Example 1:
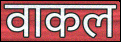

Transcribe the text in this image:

वाकल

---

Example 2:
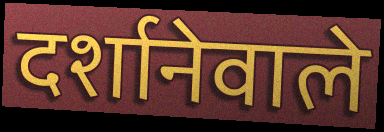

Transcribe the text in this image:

दर्शानेवाले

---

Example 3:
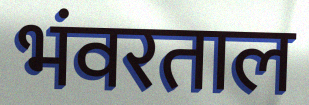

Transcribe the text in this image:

भंवरताल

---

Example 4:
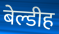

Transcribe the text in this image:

बेल्डीह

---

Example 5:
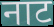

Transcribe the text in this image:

नाट